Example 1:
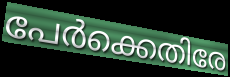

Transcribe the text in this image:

പേർക്കെതിരേ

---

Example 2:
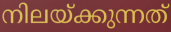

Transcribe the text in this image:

നിലയ്ക്കുന്നത്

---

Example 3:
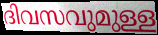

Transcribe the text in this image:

ദിവസവുമുള്ള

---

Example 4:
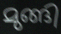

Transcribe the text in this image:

മുങ്ങി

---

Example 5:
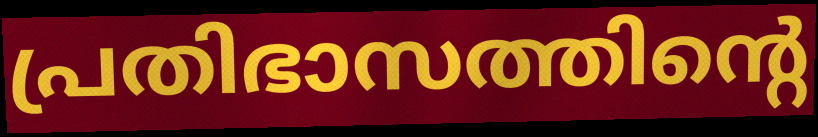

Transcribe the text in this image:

പ്രതിഭാസത്തിന്റെ